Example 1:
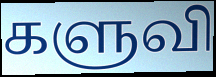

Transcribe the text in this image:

களுவி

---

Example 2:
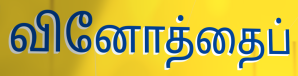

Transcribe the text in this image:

வினோத்தைப்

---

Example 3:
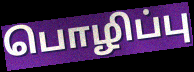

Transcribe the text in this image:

பொழிப்பு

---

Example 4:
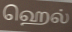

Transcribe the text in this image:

ஹெல்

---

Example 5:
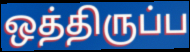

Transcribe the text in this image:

ஒத்திருப்ப